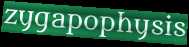
zygapophysis